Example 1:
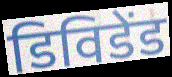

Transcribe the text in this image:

डिविडेंड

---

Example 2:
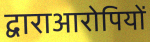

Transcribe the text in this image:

द्वाराआरोपियों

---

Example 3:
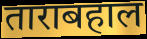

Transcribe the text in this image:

ताराबहाल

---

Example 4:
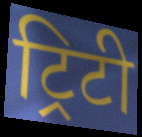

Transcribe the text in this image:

ट्रिटी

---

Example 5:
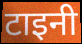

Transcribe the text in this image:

टाइनी